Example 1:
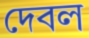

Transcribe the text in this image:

দেবল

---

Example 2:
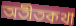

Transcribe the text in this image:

অতীতকথা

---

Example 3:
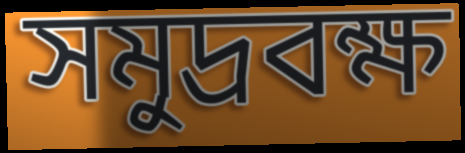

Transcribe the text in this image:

সমুদ্রবক্ষ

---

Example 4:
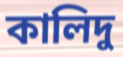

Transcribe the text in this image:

কালিদু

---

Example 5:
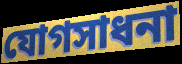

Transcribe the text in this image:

যোগসাধনা